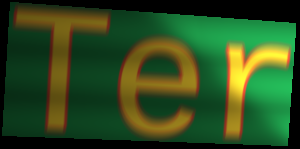
Ter